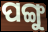
ପଙ୍ଗୁ